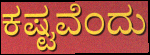
ಕಷ್ಟವೆಂದು